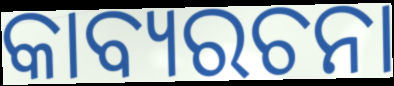
କାବ୍ୟରଚନା